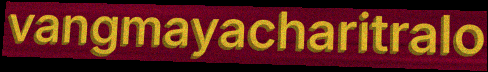
vangmayacharitralo